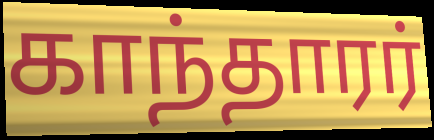
காந்தாரர்